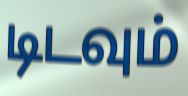
டிடவும்